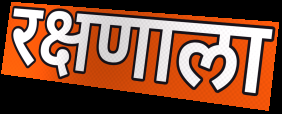
रक्षणाला